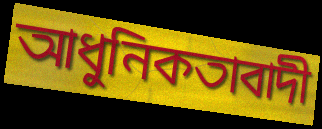
আধুনিকতাবাদী